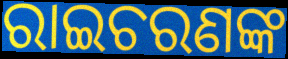
ରାଇଚରଣଙ୍କ